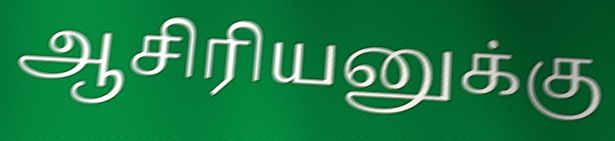
ஆசிரியனுக்கு